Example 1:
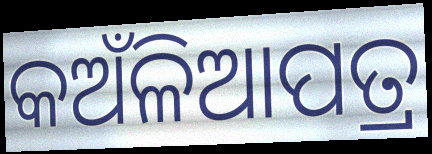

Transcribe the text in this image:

କଅଁଳିଆପତ୍ର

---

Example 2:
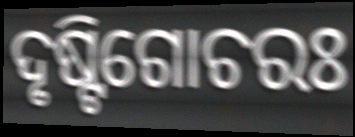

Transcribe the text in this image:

ଦୃଷ୍ଟିଗୋଚରଃ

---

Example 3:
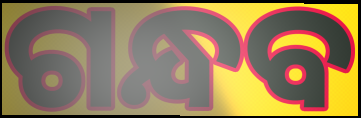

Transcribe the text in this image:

ଗନ୍ଧବ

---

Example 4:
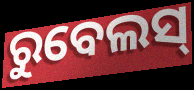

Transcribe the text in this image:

ରୁବେଲସ୍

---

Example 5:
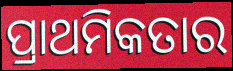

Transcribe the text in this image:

ପ୍ରାଥମିକତାର